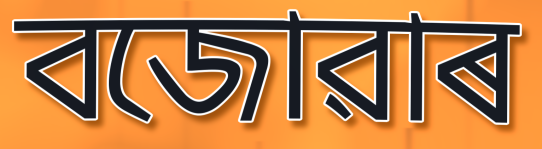
বজোৱাৰ